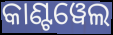
କାଣ୍ଟୱେଲ